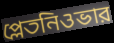
প্লেতনিওভার